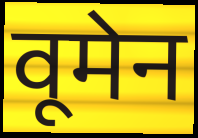
वूमेन